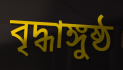
বৃদ্ধাঙ্গুষ্ঠ